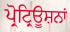
ਪ੍ਰੋਟ੍ਰਿਊਸ਼ਨਾਂ